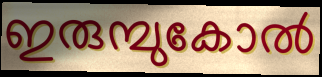
ഇരുമ്പുകോൽ